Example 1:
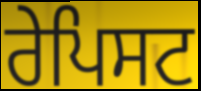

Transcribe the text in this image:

ਰੇਪਿਸਟ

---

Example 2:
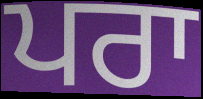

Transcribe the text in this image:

ਪਰਾ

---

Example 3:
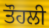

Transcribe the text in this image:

ਤੌਹਲੀ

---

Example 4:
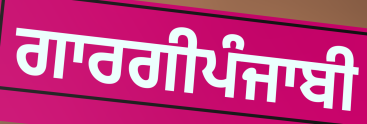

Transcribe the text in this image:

ਗਾਰਗੀਪੰਜਾਬੀ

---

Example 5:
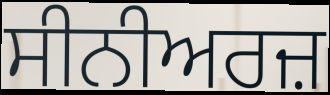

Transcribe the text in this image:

ਸੀਨੀਅਰਜ਼